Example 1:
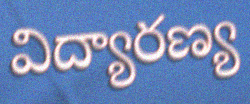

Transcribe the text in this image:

విద్యారణ్య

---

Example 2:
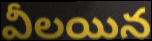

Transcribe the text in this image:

వీలయిన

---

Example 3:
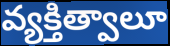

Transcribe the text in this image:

వ్యక్తిత్వాలూ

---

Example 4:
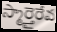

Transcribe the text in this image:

స్మార్తైరేవ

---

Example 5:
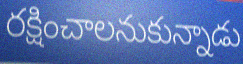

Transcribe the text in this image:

రక్షించాలనుకున్నాడు